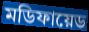
মডিফায়েড